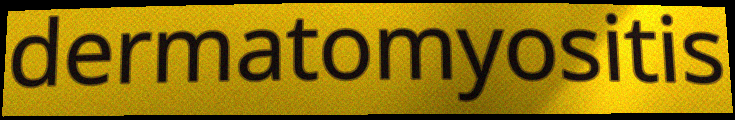
dermatomyositis